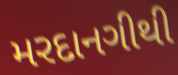
મરદાનગીથી